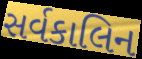
સર્વકાલિન